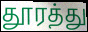
தூரத்து